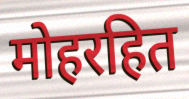
मोहरहित